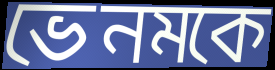
ভেনমকে